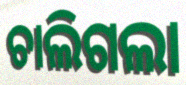
ଚାଲିଗଲା